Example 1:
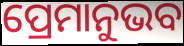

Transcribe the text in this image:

ପ୍ରେମାନୁଭବ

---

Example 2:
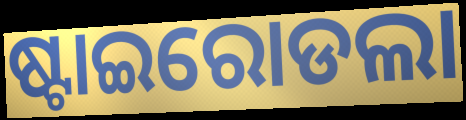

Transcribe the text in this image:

ଷ୍ଟାଇରୋଡଲା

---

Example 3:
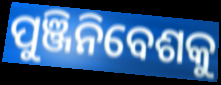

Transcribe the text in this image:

ପୁଞ୍ଜିନିବେଶକୁ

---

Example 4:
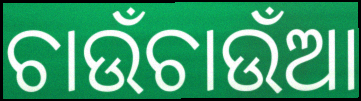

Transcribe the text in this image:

ଚାଉଁଚାଉଁଆ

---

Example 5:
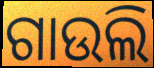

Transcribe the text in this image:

ଗାଉଲି